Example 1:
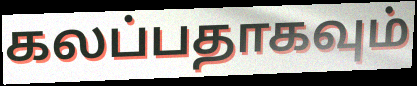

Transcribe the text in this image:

கலப்பதாகவும்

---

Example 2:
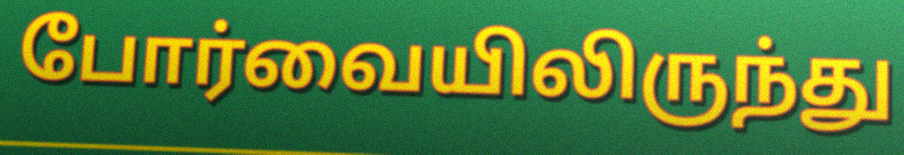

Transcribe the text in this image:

போர்வையிலிருந்து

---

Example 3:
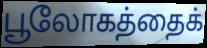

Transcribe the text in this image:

பூலோகத்தைக்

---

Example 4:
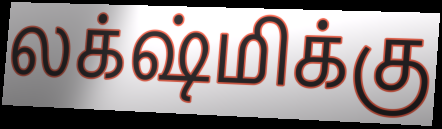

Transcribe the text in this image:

லக்‌ஷ்மிக்கு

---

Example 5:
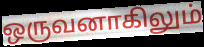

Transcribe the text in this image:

ஒருவனாகிலும்